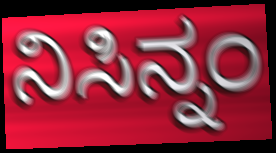
ನಿಸಿನ್ನಂ